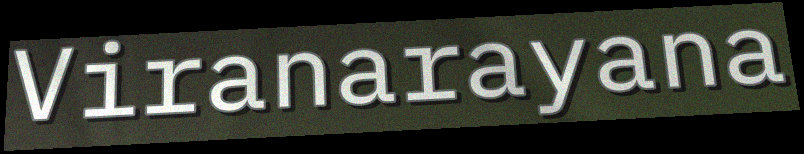
Viranarayana